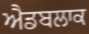
ਐਡਬਲਾਕ